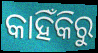
କାହିଁକିରୁ